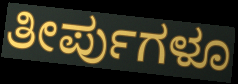
ತೀರ್ಪುಗಳೂ